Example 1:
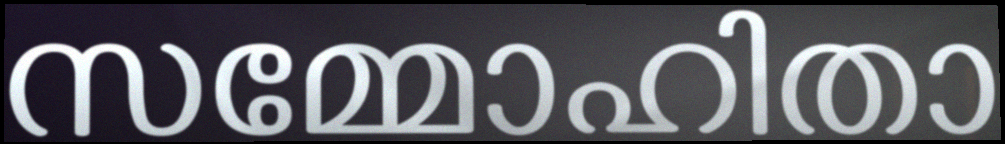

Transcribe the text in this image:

സമ്മോഹിതാ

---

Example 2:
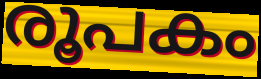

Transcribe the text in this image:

രൂപകം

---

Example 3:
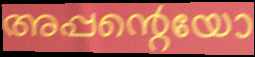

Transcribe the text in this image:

അപ്പന്റെയോ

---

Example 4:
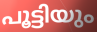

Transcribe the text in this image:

പൂട്ടിയും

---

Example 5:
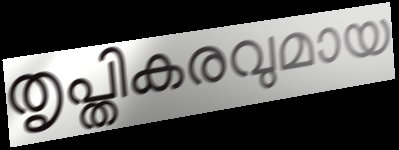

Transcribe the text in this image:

തൃപ്തികരവുമായ